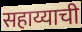
सहाय्याची